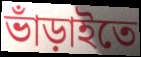
ভাঁড়াইতে